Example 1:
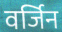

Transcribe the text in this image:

वर्जिन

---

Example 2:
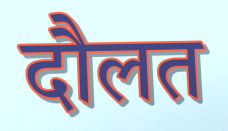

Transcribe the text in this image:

दौलत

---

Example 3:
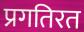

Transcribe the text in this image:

प्रगतिरत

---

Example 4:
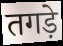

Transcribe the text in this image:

तगड़े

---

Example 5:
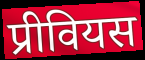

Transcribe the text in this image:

प्रीवियस